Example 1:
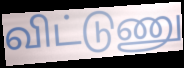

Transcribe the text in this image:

விட்டுணு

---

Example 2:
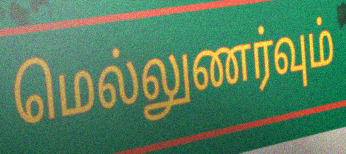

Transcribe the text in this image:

மெல்லுணர்வும்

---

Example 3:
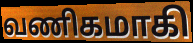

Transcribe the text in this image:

வணிகமாகி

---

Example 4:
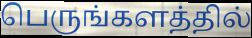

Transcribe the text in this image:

பெருங்களத்தில்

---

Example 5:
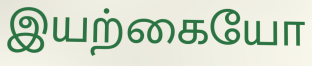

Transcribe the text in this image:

இயற்கையோ